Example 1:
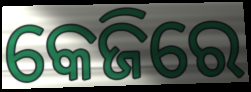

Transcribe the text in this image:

କେଜିରେ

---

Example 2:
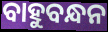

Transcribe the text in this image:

ବାହୁବନ୍ଧନ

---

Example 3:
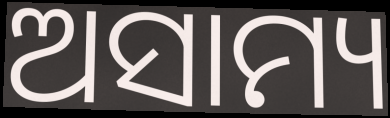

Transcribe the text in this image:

ଅସାମ୍ୟ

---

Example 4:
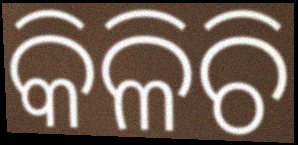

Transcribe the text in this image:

କିଳିଚି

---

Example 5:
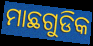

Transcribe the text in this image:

ମାଛଗୁଡିକ